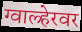
ग्वाल्हेरवर